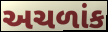
અચળાંક